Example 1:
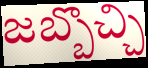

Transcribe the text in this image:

జబ్బొచ్చి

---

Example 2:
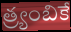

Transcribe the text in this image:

త్ర్యంబికే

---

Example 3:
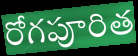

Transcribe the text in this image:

రోగపూరిత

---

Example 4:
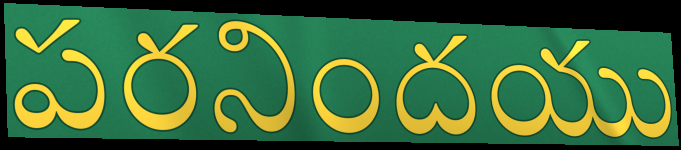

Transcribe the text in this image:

పరనిందయు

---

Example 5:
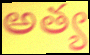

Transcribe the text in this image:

అత్య